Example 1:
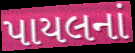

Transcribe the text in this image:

પાયલનાં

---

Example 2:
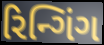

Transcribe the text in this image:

રિન્ગિંગ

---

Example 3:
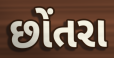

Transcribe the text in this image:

છોંતરા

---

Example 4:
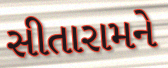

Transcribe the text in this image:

સીતારામને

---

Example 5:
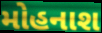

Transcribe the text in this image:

મોહનાશ